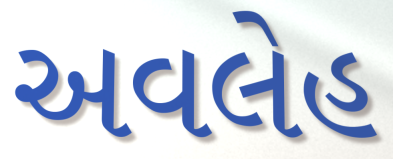
અવલેહ